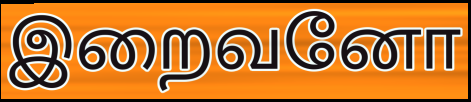
இறைவனோ